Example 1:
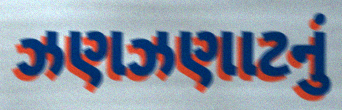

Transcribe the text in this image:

ઝણઝણાટનું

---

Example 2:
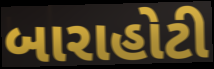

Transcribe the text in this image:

બારાહોટી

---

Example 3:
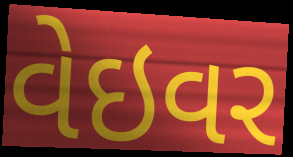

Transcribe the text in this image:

વેઇવર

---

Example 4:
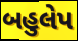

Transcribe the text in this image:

બહુલેપ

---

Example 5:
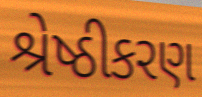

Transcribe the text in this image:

શ્રેષ્ઠીકરણ